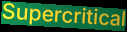
Supercritical